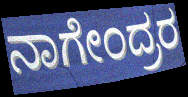
ನಾಗೇಂದ್ರರ